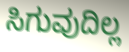
ಸಿಗುವುದಿಲ್ಲ